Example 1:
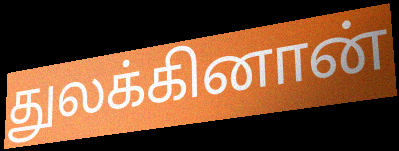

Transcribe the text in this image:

துலக்கினான்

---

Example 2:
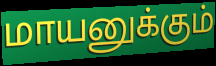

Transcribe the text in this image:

மாயனுக்கும்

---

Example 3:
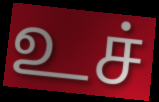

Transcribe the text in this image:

உச்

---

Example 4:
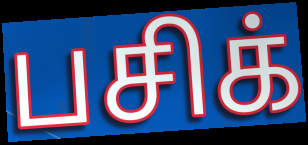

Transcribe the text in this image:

பசிக்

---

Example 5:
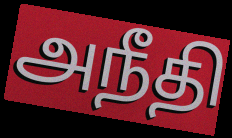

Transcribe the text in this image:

அநீதி